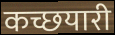
कच्छयारी